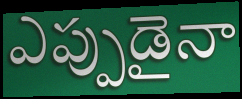
ఎప్పుడైనా